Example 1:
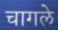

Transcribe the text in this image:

चागले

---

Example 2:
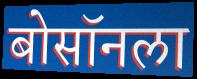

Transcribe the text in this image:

बोसॉनला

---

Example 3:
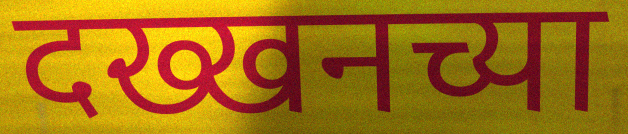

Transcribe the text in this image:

दख्खनच्या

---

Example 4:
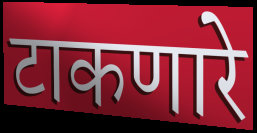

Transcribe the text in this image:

टाकणारे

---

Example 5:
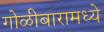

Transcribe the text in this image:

गोळीबारामध्ये